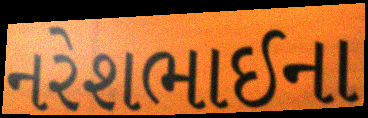
નરેશભાઈના